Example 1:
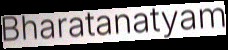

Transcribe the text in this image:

Bharatanatyam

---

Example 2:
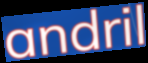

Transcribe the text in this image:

andril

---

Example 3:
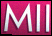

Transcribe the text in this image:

MII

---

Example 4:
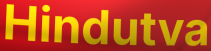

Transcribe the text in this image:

Hindutva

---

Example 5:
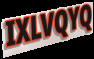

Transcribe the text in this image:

IXLVQYQ